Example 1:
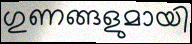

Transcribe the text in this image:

ഗുണങ്ങളുമായി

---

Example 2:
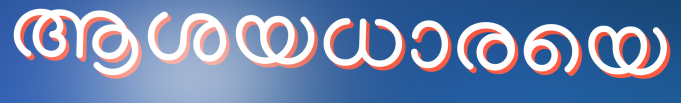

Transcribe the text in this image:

ആശയധാരയെ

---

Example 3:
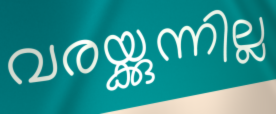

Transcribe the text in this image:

വരയ്ക്കുന്നില്ല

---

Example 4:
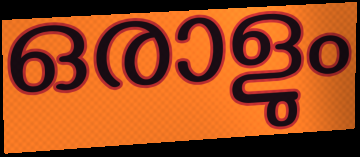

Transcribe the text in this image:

ഒരാളും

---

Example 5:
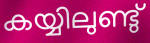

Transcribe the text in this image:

കയ്യിലുണ്ടു്